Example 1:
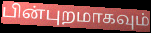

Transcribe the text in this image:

பின்புறமாகவும்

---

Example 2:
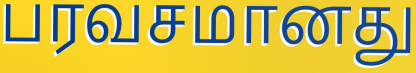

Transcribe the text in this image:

பரவசமானது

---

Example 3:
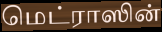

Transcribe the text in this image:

மெட்ராஸின்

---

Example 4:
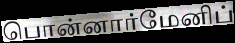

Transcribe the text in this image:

பொன்னார்மேனிப்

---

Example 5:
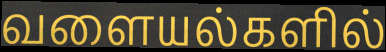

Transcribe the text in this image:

வளையல்களில்